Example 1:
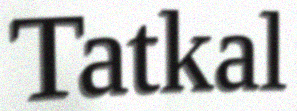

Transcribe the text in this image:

Tatkal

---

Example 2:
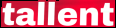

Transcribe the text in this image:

tallent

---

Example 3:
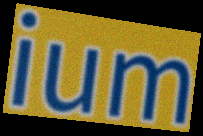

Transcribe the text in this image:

ium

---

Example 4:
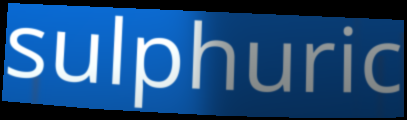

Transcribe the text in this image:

sulphuric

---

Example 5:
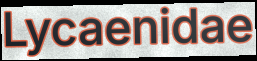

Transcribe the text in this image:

Lycaenidae